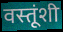
वस्तूंशी